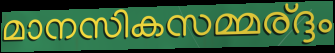
മാനസികസമ്മര്ദ്ദം